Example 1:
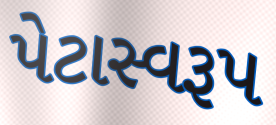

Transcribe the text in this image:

પેટાસ્વરૂપ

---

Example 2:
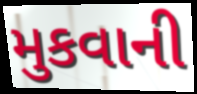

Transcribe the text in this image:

મુકવાની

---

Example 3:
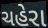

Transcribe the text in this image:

ચહેરા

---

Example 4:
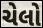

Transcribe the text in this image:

ચેલો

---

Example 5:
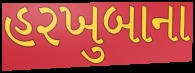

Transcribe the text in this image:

હરખુબાના